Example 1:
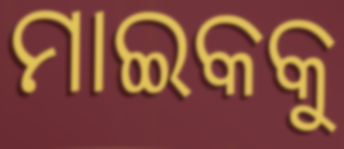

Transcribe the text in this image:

ମାଇକକୁ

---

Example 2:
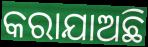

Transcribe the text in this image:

କରାଯାଅଛି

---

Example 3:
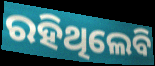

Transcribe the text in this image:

ରହିଥିଲେବି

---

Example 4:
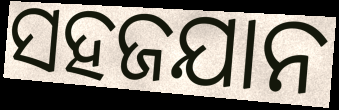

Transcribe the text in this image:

ସହଜଯାନ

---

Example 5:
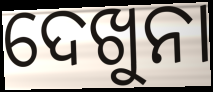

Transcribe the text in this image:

ଦେଖୁନା